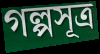
গল্পসূত্র